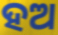
ହଅ